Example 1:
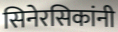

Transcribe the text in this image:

सिनेरसिकांनी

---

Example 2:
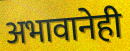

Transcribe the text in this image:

अभावानेही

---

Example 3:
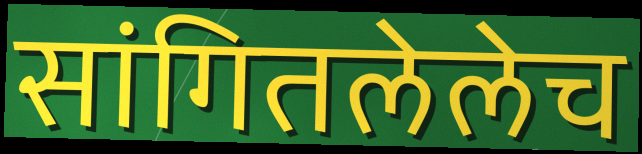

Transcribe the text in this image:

सांगितलेलेच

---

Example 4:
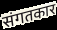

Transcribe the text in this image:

संगतकार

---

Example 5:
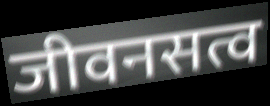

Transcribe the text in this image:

जीवनसत्व